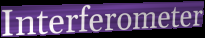
Interferometer